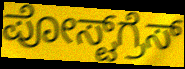
ಪೋಸ್ಟ್‌ಗ್ರೆಸ್